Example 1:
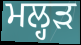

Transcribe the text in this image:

ਮਲ੍ਹੜ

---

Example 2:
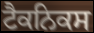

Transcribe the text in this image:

ਟੈਕਨਿਕਸ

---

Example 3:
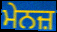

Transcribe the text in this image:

ਮੇਨਜ਼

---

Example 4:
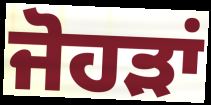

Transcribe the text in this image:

ਜੋਹੜਾਂ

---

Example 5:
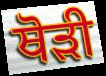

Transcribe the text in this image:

ਥੋੜੀ